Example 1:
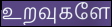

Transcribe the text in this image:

உறவுகளே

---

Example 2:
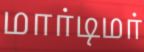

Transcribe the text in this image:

மார்டிமர்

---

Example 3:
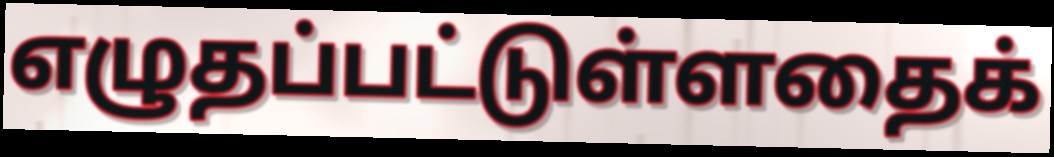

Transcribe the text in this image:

எழுதப்பட்டுள்ளதைக்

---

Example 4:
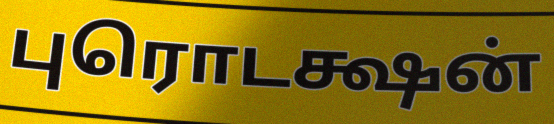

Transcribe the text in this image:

புரொடக்ஷன்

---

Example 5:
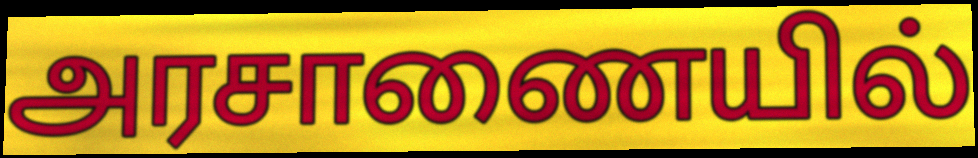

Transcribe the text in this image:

அரசாணையில்